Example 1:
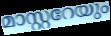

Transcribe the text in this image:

മാസ്റ്ററേയും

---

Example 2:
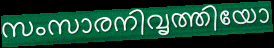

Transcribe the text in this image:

സംസാരനിവൃത്തിയോ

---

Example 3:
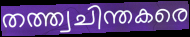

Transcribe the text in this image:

തത്ത്വചിന്തകരെ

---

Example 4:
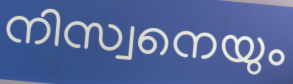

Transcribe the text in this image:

നിസ്വനെയും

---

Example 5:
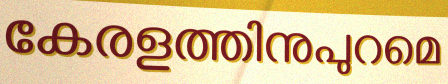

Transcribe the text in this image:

കേരളത്തിനുപുറമെ